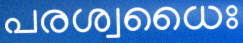
പരശ്വധൈഃ